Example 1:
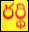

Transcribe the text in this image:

రర్థి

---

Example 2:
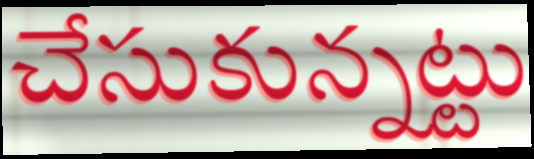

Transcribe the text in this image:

చేసుకున్నట్టు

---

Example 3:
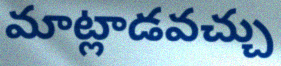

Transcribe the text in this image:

మాట్లాడవచ్చు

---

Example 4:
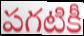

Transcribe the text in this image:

పగటికీ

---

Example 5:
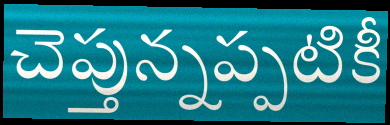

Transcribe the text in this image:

చెప్తున్నప్పటికీ